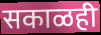
सकाळही